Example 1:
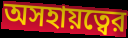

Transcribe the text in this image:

অসহায়ত্বের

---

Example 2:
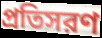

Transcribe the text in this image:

প্রতিসরণ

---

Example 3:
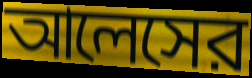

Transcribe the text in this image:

আলেসের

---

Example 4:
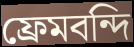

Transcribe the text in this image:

ফ্রেমবন্দি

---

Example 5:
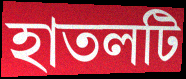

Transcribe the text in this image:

হাতলটি